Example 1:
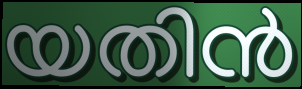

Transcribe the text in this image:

യതിൻ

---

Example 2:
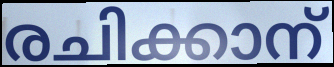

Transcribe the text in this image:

രചിക്കാന്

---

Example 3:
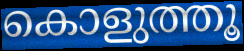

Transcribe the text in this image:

കൊളുത്തൂ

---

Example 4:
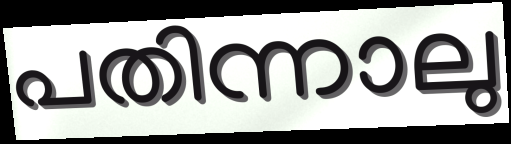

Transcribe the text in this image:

പതിന്നാലു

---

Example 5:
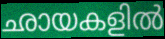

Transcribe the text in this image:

ഛായകളിൽ